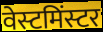
वेस्‍टमिंस्‍टर